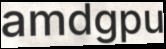
amdgpu